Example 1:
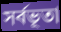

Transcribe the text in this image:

সর্বভূতা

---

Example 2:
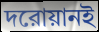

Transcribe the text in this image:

দরোয়ানই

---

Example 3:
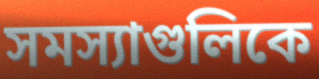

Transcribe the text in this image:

সমস্যাগুলিকে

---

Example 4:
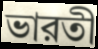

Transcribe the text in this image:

ভারতী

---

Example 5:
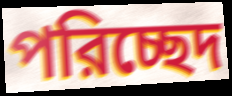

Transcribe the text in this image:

পরিচ্ছেদ